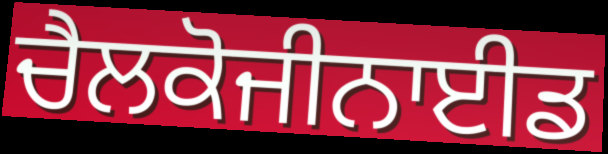
ਚੈਲਕੋਜੀਨਾਈਡ